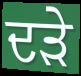
ਦੜੇ